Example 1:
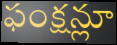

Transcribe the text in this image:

ఫంక్షన్లూ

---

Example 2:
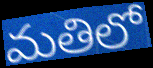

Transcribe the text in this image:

మతిలో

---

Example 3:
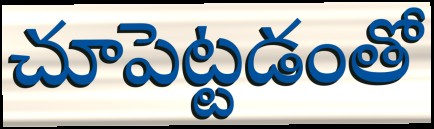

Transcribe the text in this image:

చూపెట్టడంతో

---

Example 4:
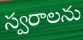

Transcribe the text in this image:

స్వరాలను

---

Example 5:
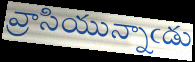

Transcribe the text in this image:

వ్రాసియున్నాఁడు